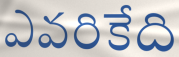
ఎవరికేది